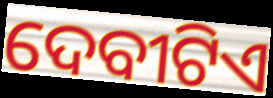
ଦେବୀଟିଏ